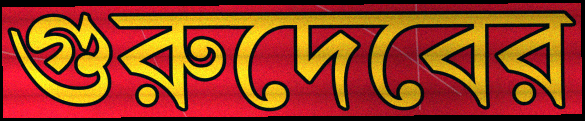
গুরুদেবের